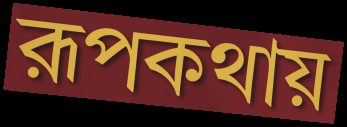
রূপকথায়